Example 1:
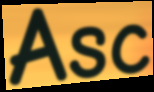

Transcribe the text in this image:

Asc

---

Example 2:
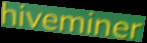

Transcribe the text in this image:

hiveminer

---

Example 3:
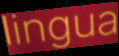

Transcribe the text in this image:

lingua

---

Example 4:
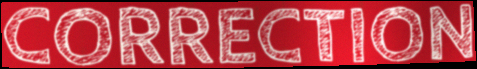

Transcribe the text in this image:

CORRECTION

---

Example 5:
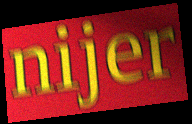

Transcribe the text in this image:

nijer